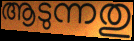
ആടുന്നതു